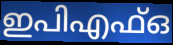
ഇപിഎഫ്ഒ